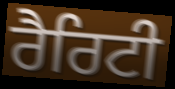
ਰੈਰਿਟੀ